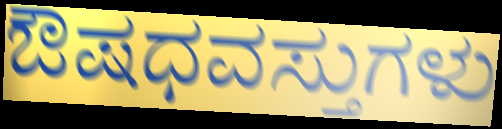
ಔಷಧವಸ್ತುಗಳು